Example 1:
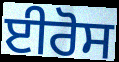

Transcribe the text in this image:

ਈਰੋਸ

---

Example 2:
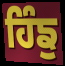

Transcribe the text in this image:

ਹਿੰਙੁ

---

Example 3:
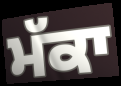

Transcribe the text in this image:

ਮੱਕਾ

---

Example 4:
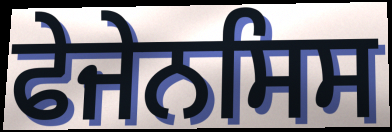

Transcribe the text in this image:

ਫੇਜੇਨਸਿਸ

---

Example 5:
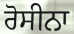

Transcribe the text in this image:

ਰੋਸੀਨਾ